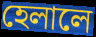
হেলালে